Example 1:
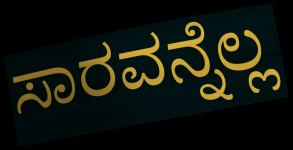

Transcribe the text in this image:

ಸಾರವನ್ನೆಲ್ಲ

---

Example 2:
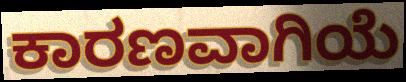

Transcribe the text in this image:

ಕಾರಣವಾಗಿಯೆ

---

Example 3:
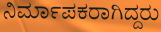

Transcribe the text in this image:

ನಿರ್ಮಾಪಕರಾಗಿದ್ದರು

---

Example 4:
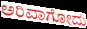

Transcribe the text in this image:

ಅರಿವಾಗೋದು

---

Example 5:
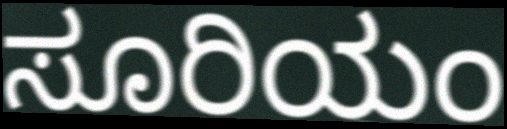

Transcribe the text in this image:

ಸೂರಿಯಂ